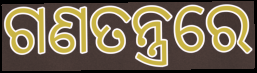
ଗଣତନ୍ତ୍ରରେ